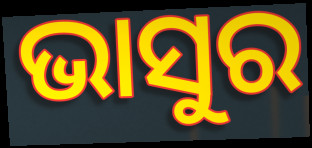
ଭାସୁର